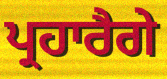
ਪ੍ਰਹਾਰੈਗੇ